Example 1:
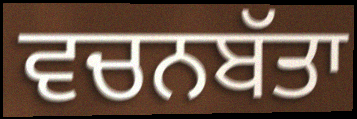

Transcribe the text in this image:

ਵਚਨਬੱਤਾ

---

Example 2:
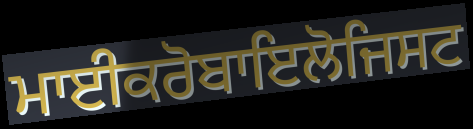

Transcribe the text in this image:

ਮਾਈਕਰੋਬਾਇਲੋਜਿਸਟ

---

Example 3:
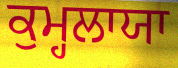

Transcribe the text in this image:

ਕੁਮ੍ਹਲਾਯਾ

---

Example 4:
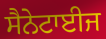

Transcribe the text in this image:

ਸੈਨੇਟਾਈਜ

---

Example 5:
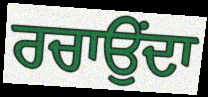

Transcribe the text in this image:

ਰਚਾਉਂਦਾ